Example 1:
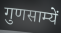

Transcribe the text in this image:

गुणसाम्यें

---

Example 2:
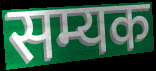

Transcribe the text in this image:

सम्‍यक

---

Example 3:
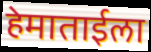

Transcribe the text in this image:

हेमाताईला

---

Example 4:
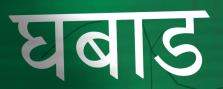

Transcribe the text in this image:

घबाड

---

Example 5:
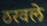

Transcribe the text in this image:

ठरवले